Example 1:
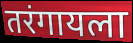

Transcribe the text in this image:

तरंगायला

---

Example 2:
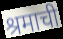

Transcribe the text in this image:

श्रमाची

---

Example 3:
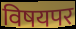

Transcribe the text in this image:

विषयपर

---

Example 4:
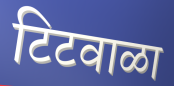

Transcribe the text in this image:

टिटवाळा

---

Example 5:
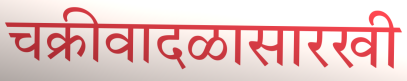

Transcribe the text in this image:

चक्रीवादळासारखी